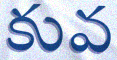
కువ